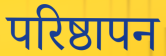
परिष्ठापन